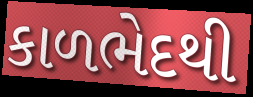
કાળભેદથી